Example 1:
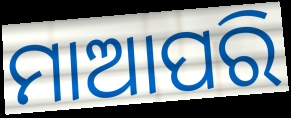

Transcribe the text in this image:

ମାଆପରି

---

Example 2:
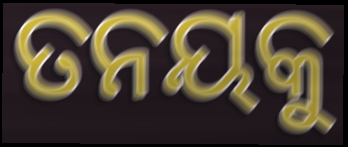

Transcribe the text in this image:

ତନୟକୁ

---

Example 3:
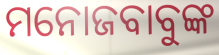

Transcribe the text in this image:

ମନୋଜବାବୁଙ୍କ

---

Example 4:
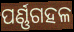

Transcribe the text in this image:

ପର୍ଣ୍ଣଗହଳ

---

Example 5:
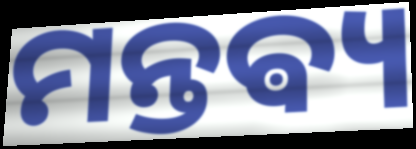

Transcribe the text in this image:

ମନ୍ତଵ୍ୟ